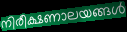
നിരീക്ഷണാലയങ്ങൾ